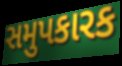
સમુપકારક